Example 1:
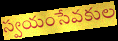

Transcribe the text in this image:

స్వయంసేవకుల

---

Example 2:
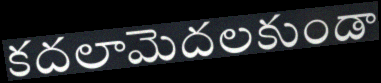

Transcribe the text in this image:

కదలామెదలకుండా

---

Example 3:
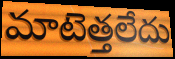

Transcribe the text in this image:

మాటెత్తలేదు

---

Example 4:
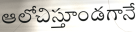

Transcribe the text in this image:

ఆలోచిస్తూండగానే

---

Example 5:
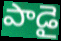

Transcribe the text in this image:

పాడై